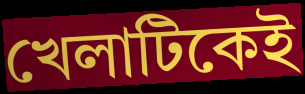
খেলাটিকেই